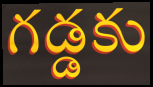
గడ్డకు